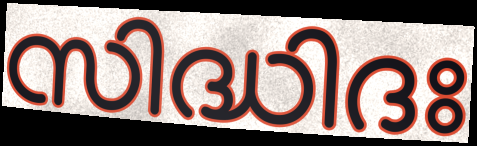
സിദ്ധിദഃ